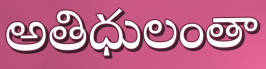
అతిధులంతా